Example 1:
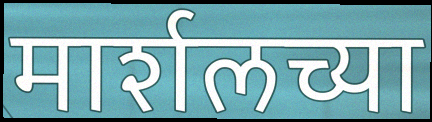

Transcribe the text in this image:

मार्शलच्या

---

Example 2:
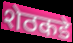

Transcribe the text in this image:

शेठकडे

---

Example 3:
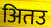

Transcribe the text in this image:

अितउ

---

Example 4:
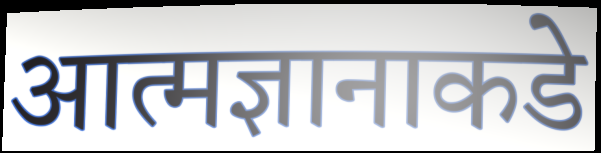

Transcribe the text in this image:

आत्मज्ञानाकडे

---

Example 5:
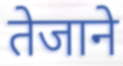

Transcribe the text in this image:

तेजाने